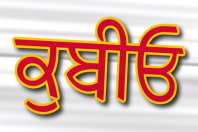
ਕੁਬੀਓ